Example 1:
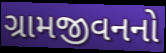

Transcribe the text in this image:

ગ્રામજીવનનો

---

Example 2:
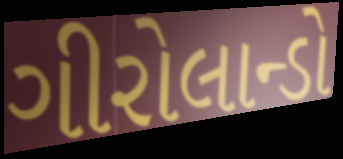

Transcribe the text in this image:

ગીરોલાન્ડો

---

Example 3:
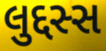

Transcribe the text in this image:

લુદ્દસ્સ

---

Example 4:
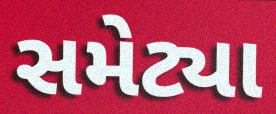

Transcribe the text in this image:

સમેટ્યા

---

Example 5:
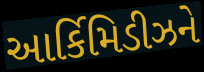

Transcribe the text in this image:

આર્કિમિડીઝને